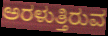
ಅರಳುತ್ತಿರುವ